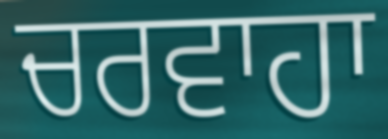
ਚਰਵਾਹਾ